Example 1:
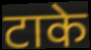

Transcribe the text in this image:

टाके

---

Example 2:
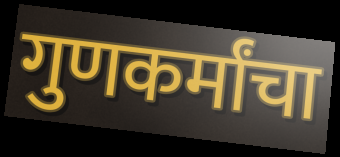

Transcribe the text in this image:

गुणकर्मांचा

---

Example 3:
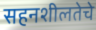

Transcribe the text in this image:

सहनशीलतेचे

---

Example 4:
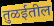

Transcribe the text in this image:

तुळईतील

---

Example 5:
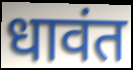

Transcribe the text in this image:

धावंत